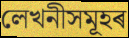
লেখনীসমূহৰ